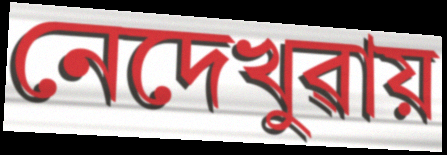
নেদেখুৱায়